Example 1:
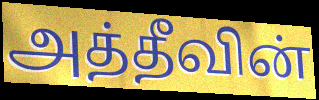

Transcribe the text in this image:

அத்தீவின்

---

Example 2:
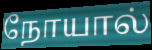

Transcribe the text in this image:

நோயால்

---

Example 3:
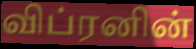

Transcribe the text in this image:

விப்ரனின்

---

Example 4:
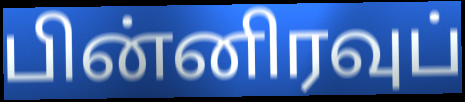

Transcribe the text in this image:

பின்னிரவுப்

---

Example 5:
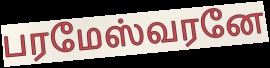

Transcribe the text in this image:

பரமேஸ்வரனே